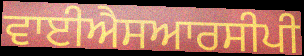
ਵਾਈਐਸਆਰਸੀਪੀ